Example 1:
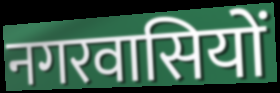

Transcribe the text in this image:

नगरवासियों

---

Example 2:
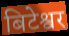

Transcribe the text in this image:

बिटेश्वर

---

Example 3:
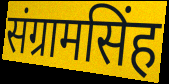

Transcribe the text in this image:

संग्रामसिंह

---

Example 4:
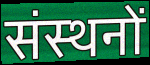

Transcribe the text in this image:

संस्थनों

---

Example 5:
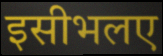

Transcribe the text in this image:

इसीभलए